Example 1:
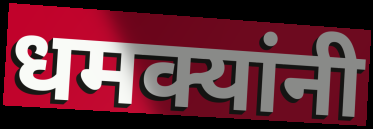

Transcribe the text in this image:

धमक्यांनी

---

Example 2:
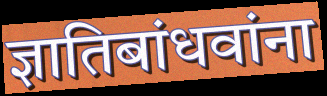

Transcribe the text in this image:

ज्ञातिबांधवांना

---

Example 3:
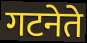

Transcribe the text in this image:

गटनेते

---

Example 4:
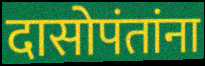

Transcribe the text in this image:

दासोपंतांना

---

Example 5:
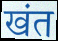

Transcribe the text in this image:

खंत